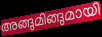
അങ്ങുമിങ്ങുമായി